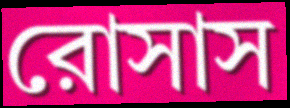
রোসাস